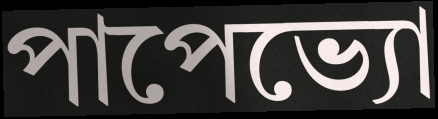
পাপেভ্যো